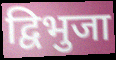
द्विभुजा